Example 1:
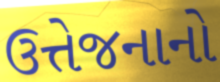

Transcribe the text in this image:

ઉત્તેજનાનો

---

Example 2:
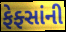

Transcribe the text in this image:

ફેફ્સાંની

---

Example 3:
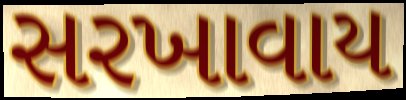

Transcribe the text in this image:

સરખાવાય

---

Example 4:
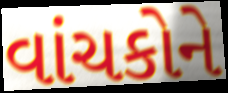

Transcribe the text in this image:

વાંચકોને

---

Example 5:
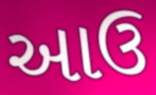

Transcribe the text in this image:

આઉ